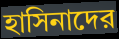
হাসিনাদের